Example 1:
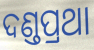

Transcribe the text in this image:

ଦଣ୍ଡପ୍ରଥା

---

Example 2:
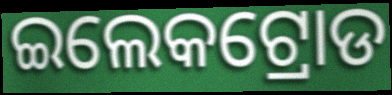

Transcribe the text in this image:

ଇଲେକଟ୍ରୋଡ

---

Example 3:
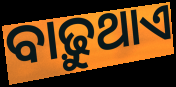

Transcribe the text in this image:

ବାଢ଼ୁଥାଏ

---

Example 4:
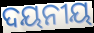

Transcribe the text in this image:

ଦୟନୀୟ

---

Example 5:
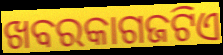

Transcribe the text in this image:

ଖବରକାଗଜଟିଏ